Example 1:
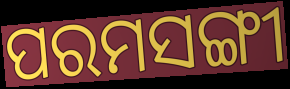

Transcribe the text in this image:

ପରମସଙ୍ଗୀ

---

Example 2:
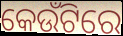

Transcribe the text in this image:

କେଉଁଟିରେ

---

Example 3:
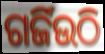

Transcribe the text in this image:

ଗର୍ଜିଉଠି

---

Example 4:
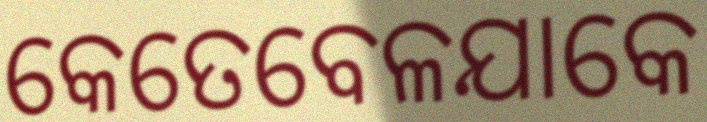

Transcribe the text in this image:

କେତେବେଳଯାକେ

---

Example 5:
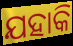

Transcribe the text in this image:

ଯହାକି